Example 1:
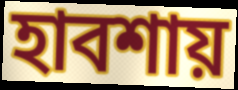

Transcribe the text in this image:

হাবশায়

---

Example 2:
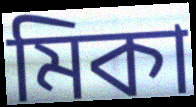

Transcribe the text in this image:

মিকা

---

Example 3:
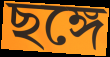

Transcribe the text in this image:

ছঙ্গে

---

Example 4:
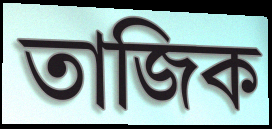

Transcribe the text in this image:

তাজিক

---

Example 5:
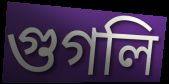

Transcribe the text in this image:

গুগলি